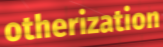
otherization